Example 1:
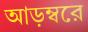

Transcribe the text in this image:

আড়ম্বরে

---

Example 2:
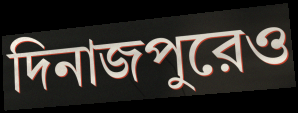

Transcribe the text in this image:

দিনাজপুরেও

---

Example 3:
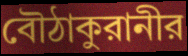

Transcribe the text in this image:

বৌঠাকুরানীর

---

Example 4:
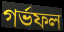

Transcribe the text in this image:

গর্ভফল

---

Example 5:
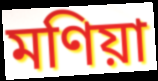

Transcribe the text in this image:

মণিয়া